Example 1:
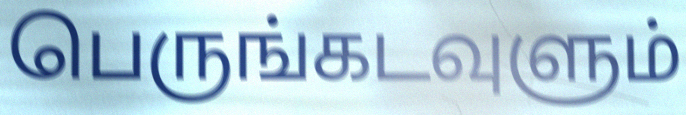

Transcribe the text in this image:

பெருங்கடவுளும்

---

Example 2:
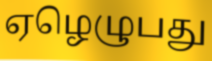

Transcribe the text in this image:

ஏழெழுபது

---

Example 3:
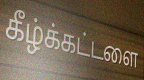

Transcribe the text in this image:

கீழ்க்கட்டளை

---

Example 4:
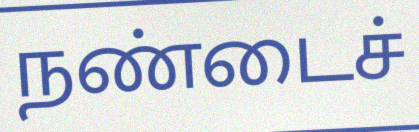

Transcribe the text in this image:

நண்டைச்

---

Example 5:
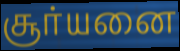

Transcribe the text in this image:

சூர்யனை